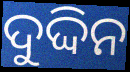
ଦୁଦ୍ଦିନ